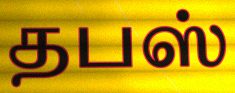
தபஸ்